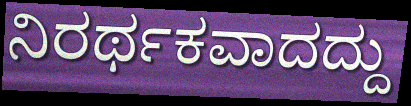
ನಿರರ್ಥಕವಾದದ್ದು